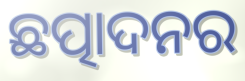
ଛତ୍ପାଦନର